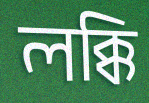
লক্কি